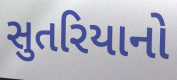
સુતરિયાનો